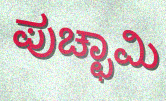
ಪುಚ್ಛಾಮಿ